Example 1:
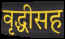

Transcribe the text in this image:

वृद्धीसह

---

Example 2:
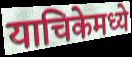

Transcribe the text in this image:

याचिकेमध्ये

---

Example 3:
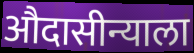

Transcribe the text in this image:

औदासीन्याला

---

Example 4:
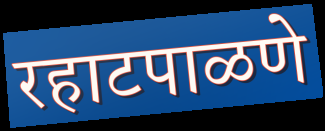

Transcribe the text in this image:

रहाटपाळणे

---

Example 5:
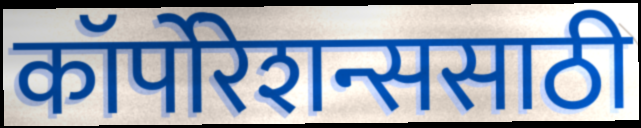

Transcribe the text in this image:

कॉर्पोरेशन्ससाठी